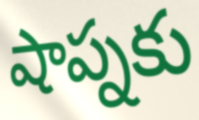
షాప్నకు